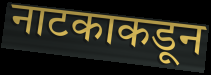
नाटकाकडून